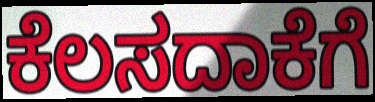
ಕೆಲಸದಾಕೆಗೆ